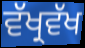
ਵੱਖ੍ਰਵੱਖ